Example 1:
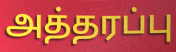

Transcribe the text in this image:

அத்தரப்பு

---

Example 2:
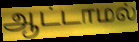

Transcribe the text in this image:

ஆட்டாமல்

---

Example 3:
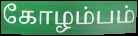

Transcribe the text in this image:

கோழம்பம்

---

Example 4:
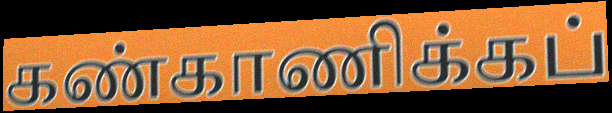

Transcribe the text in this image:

கண்காணிக்கப்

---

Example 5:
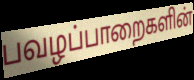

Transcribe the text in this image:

பவழப்பாறைகளின்